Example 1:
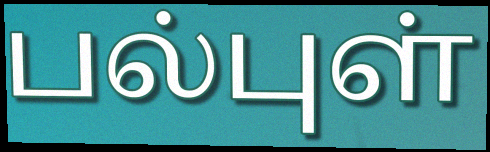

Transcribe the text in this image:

பல்புள்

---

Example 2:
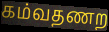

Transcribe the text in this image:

கம்வதணற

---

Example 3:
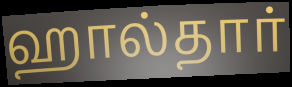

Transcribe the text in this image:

ஹால்தார்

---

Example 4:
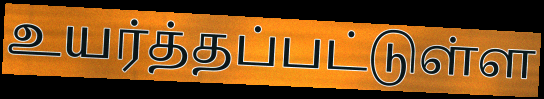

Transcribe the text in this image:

உயர்த்தப்பட்டுள்ள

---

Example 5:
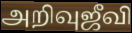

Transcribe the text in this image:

அறிவுஜீவி